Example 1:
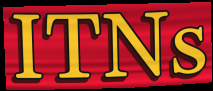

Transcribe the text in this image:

ITNs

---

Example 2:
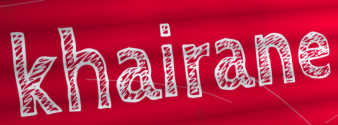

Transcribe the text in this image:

khairane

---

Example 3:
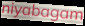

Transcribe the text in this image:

niyabagam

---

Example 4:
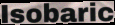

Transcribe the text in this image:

Isobaric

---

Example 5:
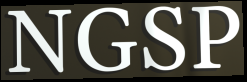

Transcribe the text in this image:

NGSP